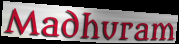
Madhuram